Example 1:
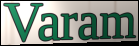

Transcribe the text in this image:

Varam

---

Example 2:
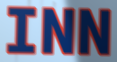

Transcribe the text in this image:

INN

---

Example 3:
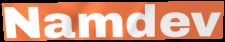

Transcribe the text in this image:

Namdev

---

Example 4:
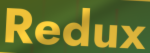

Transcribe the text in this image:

Redux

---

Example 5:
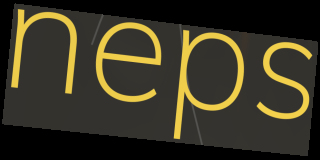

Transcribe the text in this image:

neps